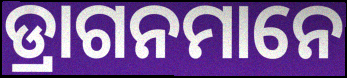
ଡ୍ରାଗନମାନେ